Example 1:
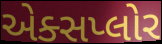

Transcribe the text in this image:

એક્સપ્લોર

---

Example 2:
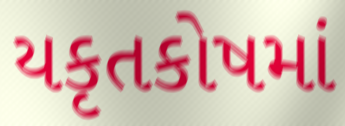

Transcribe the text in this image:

યકૃતકોષમાં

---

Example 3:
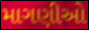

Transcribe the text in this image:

માગણીઓ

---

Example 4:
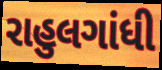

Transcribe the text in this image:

રાહુલગાંધી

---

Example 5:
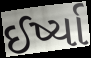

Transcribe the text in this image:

ઈર્ષ્યા